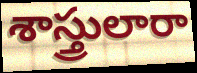
శాస్త్రులారా